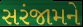
સરંજામને